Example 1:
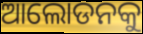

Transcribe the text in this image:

ଆଲୋଡନକୁ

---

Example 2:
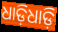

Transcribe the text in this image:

ଧାଡ଼ିଧାଡ଼ି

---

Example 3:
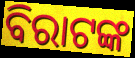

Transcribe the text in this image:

ବିରାଟଙ୍କ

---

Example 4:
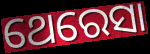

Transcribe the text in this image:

ଥେରେସା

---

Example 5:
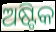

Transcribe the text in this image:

ଅଷ୍ଟିକ